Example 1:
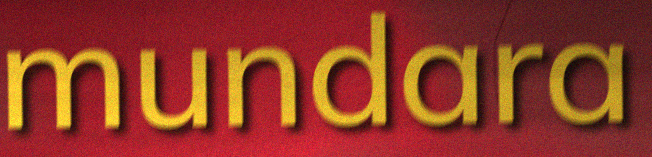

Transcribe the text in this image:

mundara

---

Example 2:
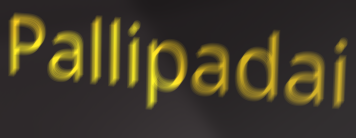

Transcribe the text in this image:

Pallipadai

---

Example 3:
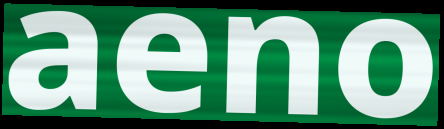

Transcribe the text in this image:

aeno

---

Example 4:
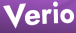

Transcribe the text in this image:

Verio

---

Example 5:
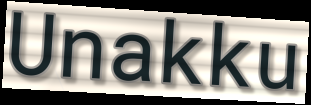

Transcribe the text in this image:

Unakku